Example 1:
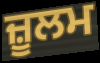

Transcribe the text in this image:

ਜ਼ੂਲਮ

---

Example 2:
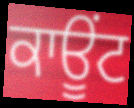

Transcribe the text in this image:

ਕਾਊਂਟ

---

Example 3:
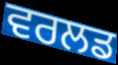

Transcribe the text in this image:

ਵਰਲਡ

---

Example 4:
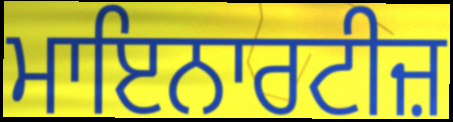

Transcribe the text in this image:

ਮਾਇਨਾਰਟੀਜ਼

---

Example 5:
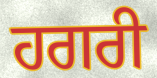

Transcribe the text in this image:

ਹਗਰੀ